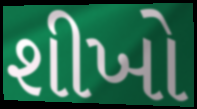
શીખો